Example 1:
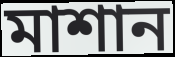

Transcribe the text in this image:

মাশান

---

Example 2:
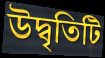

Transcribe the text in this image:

উদ্বৃতিটি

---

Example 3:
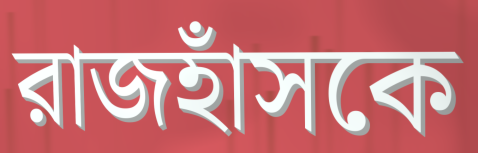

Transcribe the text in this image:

রাজহাঁসকে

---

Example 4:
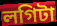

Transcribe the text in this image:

লগিটা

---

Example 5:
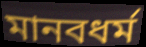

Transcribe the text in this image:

মানবধর্ম